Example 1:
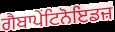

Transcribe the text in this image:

ਗੈਬਾਪੇਂਟਿਨੋਇਡਜ਼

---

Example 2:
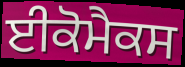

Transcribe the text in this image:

ਈਕੋਮੈਕਸ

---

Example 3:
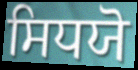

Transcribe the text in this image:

ਸਿਧਯੋ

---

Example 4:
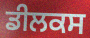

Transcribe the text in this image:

ਡੀਲਕਸ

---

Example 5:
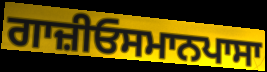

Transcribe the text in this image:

ਗਾਜ਼ੀਓਸਮਾਨਪਾਸਾ